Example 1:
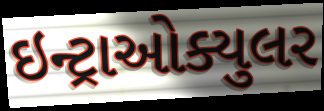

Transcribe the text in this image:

ઇન્ટ્રાઓક્યુલર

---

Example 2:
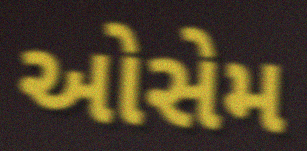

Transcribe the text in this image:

ઓસેમ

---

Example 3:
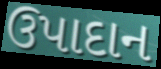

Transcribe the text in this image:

ઉપાદાન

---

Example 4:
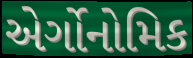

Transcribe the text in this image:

એર્ગોનોમિક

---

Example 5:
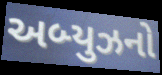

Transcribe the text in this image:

અબ્યુઝનો